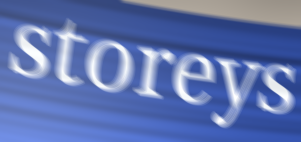
storeys